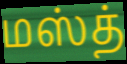
மஸ்த்